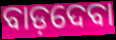
ବାଡ଼ଦେବା